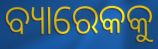
ବ୍ୟାରେକକୁ